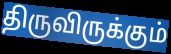
திருவிருக்கும்